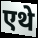
एथे